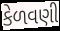
કેળવણી